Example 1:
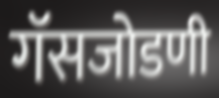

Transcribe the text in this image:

गॅसजोडणी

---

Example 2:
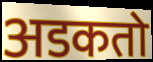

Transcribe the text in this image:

अडकतो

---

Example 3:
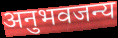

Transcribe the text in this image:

अनुभवजन्य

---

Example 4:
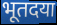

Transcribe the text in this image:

भूतदया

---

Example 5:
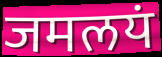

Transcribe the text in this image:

जमलयं